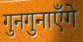
गुनगुनाएँगे